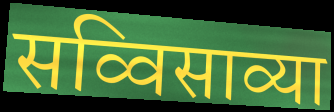
सव्विसाव्या